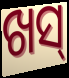
ଖସ୍